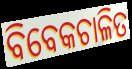
ବିବେକଚାଳିତ